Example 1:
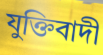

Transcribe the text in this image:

যুক্তিবাদী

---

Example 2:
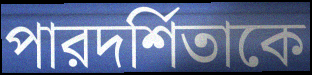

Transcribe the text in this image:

পারদর্শিতাকে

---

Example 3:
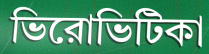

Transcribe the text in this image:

ভিরোভিটিকা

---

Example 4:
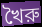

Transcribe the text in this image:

খৈরু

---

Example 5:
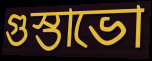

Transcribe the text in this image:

গুস্তাভো